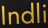
Indli